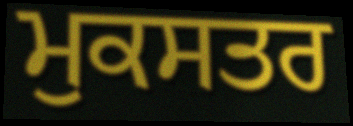
ਮੁਕਸਤਰ